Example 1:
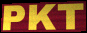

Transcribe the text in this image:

PKT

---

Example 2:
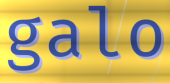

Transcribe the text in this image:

galo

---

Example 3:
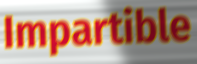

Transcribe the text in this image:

Impartible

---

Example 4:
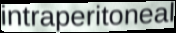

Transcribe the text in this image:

intraperitoneal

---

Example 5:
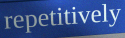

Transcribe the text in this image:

repetitively